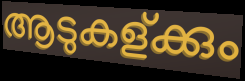
ആടുകള്ക്കും